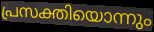
പ്രസക്തിയൊന്നും